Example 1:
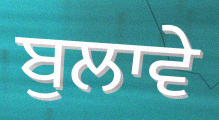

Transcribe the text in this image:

ਬੁਲਾਵੇ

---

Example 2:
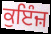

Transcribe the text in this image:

ਕੁਇੰਜ਼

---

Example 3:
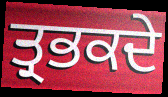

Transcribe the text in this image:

ਤ੍ਰਭਕਦੇ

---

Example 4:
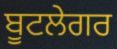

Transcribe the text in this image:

ਬੂਟਲੇਗਰ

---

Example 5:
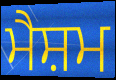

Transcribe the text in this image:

ਮੈਸ਼ਮ